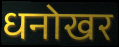
धनोखर